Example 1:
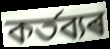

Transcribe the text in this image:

কৰ্তব্যৰ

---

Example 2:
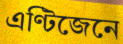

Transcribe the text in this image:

এণ্টিজেনে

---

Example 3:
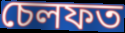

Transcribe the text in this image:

চেলফত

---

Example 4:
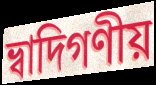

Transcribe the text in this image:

ভ্বাদিগণীয়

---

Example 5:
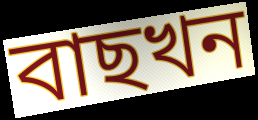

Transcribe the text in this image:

বাছখন